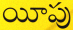
యీపు